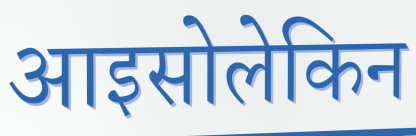
आइसोलेकिन